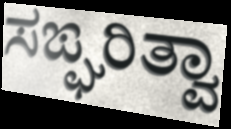
ಸಙ್ಘರಿತ್ವಾ